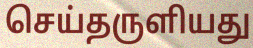
செய்தருளியது